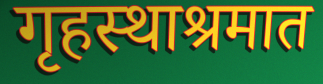
गृहस्थाश्रमात